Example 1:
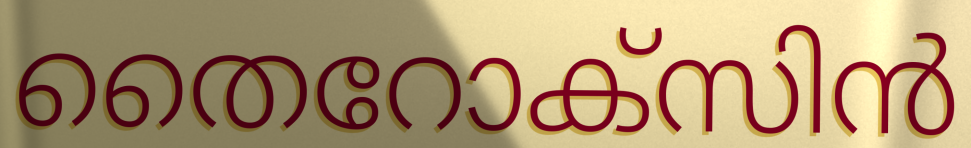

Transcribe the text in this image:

തൈറോക്സിൻ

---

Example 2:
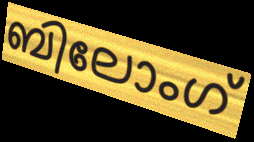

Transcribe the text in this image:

ബിലോംഗ്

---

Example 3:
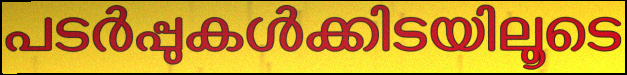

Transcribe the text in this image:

പടർപ്പുകൾക്കിടയിലൂടെ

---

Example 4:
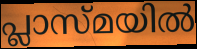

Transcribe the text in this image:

പ്ലാസ്മയിൽ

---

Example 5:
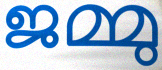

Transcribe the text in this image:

ജമ്മു